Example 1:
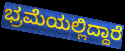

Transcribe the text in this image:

ಭ್ರಮೆಯಲ್ಲಿದ್ದಾರೆ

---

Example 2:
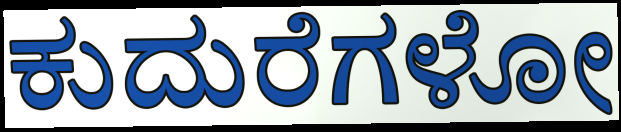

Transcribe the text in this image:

ಕುದುರೆಗಳೋ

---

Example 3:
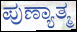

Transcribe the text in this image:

ಪುಣ್ಯಾತ್ಮ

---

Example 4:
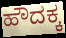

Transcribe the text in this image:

ಹೌದಕ್ಕ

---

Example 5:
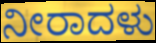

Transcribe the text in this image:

ನೀರಾದಳು